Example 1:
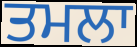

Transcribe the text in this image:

ਤਮਲਾ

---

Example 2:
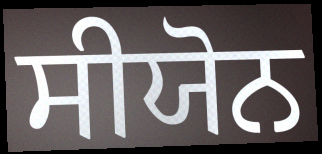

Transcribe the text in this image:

ਸੀਯੋਨ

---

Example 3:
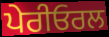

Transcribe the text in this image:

ਪੇਰੀਓਰਲ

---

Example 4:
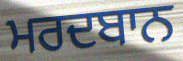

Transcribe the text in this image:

ਮਰਦਬਾਨ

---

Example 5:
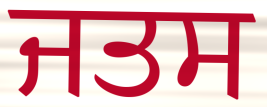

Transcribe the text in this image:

ਜਤਸ